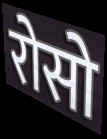
रोसो